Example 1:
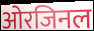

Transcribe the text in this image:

ओरजिनल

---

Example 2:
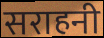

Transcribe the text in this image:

सराहनी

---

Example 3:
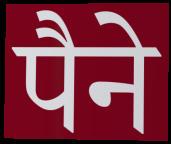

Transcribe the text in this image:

पैने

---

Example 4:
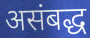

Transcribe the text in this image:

असंबद्ध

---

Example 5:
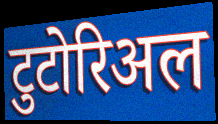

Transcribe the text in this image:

टुटोरिअल